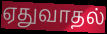
ஏதுவாதல்